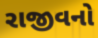
રાજીવનો